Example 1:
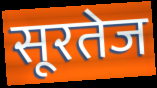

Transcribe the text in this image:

सूरतेज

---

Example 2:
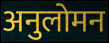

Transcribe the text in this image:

अनुलोमन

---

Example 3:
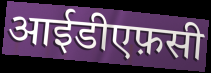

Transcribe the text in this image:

आईडीएफ़सी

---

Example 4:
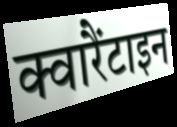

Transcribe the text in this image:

क्वारैंटाइन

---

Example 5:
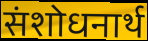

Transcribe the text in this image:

संशोधनार्थ